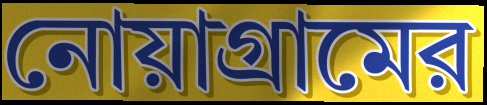
নোয়াগ্রামের